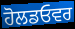
ਹੋਲਡਓਵਰ